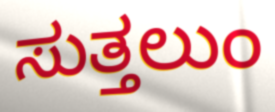
ಸುತ್ತಲುಂ